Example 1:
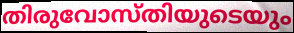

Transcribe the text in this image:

തിരുവോസ്തിയുടെയും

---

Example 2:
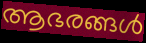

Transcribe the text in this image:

ആഭരങ്ങൾ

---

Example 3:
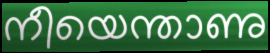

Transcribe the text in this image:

നീയെന്താണു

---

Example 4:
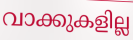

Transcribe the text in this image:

വാക്കുകളില്ല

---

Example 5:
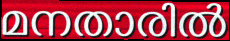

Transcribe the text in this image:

മനതാരിൽ